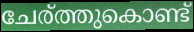
ചേര്ത്തുകൊണ്ട്